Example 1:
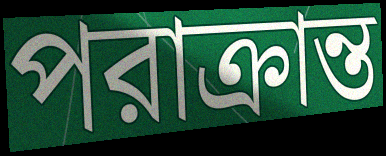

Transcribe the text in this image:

পরাক্রান্ত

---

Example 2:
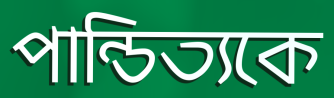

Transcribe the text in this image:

পান্ডিত্যকে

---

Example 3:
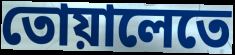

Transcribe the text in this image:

তোয়ালেতে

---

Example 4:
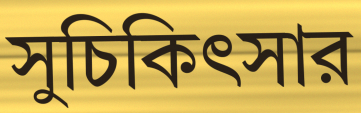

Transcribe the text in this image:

সুচিকিৎসার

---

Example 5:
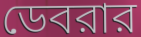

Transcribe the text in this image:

ডেবরার